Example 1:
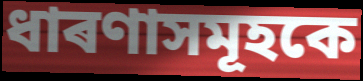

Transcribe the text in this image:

ধাৰণাসমূহকে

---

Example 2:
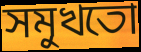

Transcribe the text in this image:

সমুখতো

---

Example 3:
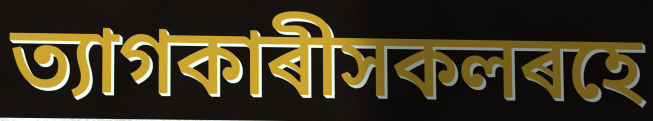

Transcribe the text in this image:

ত্যাগকাৰীসকলৰহে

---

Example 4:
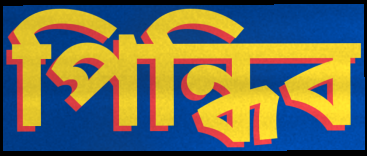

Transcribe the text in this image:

পিন্ধিব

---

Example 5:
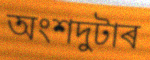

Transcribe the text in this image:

অংশদুটাৰ